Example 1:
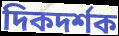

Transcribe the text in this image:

দিকদর্শক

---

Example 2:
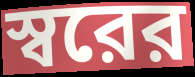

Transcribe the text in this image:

স্বরের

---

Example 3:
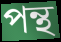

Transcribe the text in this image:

পন্থ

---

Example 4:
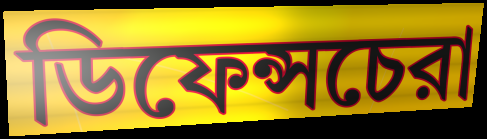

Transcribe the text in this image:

ডিফেন্সচেরা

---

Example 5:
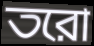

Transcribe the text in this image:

তরো